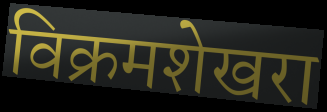
विक्रमशेखरा